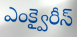
ఎంక్వైరీస్